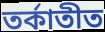
তর্কাতীত